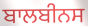
ਬਾਲਬੀਨਸ